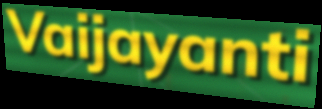
Vaijayanti